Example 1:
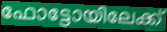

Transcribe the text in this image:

ഫോട്ടോയിലേക്ക്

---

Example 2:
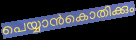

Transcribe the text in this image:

പെയ്യാൻകൊതിക്കും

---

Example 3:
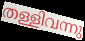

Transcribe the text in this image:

തള്ളിവന്നു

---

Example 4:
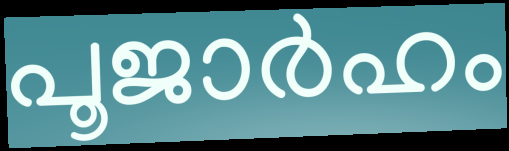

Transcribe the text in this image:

പൂജാർഹം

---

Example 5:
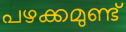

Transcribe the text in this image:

പഴക്കമുണ്ട്